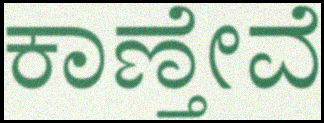
ಕಾಣ್ತೇವೆ